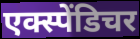
एक्स्पेंडिचर